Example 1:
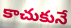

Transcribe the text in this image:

కాచుకునే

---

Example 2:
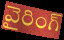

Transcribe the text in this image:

వైరింగ్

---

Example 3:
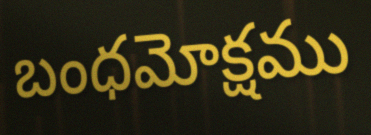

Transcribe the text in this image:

బంధమోక్షము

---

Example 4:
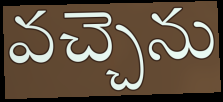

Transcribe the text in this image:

వచ్చెను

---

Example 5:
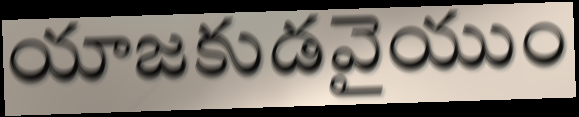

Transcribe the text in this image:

యాజకుడవైయుం